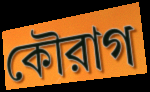
কৌরাগ